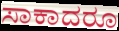
ಸಾಕಾದರೂ